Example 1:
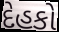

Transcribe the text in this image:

દેહકો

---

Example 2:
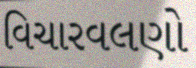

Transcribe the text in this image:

વિચારવલણો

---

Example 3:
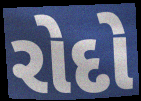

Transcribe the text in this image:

રોદો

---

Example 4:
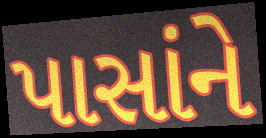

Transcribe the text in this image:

પાસાંને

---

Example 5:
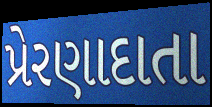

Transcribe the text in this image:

પ્રેરણાદાતા